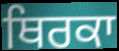
ਥਿਰਕਾ